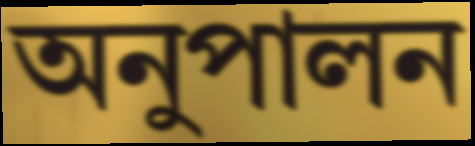
অনুপালন